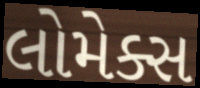
લોમેક્સ